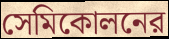
সেমিকোলনের